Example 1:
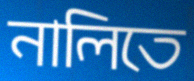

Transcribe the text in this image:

নালিতে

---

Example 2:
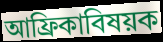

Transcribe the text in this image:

আফ্রিকাবিষয়ক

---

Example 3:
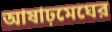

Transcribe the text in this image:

আষাঢ়মেঘের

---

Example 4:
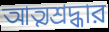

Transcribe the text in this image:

আত্মশ্রদ্ধার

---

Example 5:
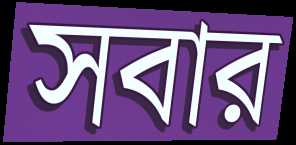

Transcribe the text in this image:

সবার